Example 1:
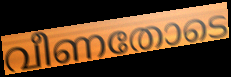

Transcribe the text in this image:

വീണതോടെ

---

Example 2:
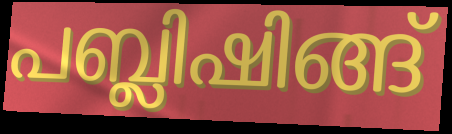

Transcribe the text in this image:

പബ്ലിഷിങ്ങ്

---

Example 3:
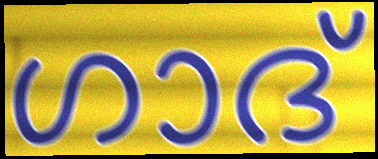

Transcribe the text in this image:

ഗാദ്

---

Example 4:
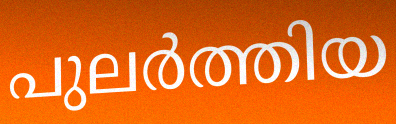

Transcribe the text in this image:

പുലർത്തിയ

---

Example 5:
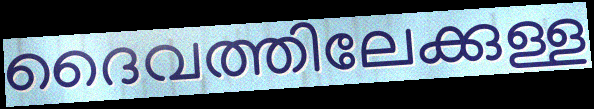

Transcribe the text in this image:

ദൈവത്തിലേക്കുള്ള